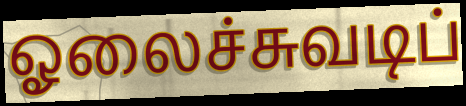
ஓலைச்சுவடிப்